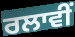
ਰਲਾਵੀਂ